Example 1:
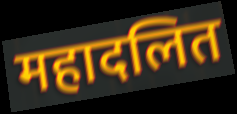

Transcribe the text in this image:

महादलित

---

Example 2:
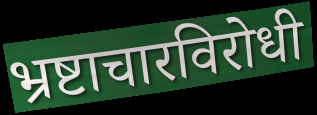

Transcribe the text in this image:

भ्रष्टाचारविरोधी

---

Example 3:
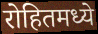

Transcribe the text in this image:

रोहितमध्ये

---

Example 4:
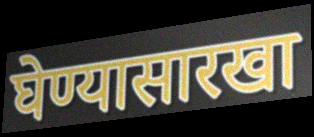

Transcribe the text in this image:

घेण्यासारखा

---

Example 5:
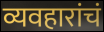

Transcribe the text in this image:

व्यवहारांचं